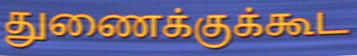
துணைக்குக்கூட